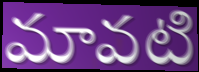
మావటి